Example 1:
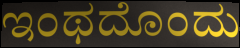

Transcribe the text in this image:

ಇಂಥದೊಂದು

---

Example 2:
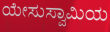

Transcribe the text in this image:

ಯೇಸುಸ್ವಾಮಿಯ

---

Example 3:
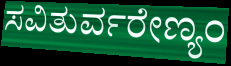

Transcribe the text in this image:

ಸವಿತುರ್ವರೇಣ್ಯಂ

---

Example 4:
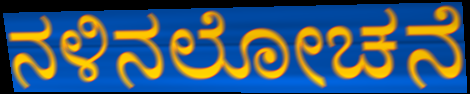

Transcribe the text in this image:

ನಳಿನಲೋಚನೆ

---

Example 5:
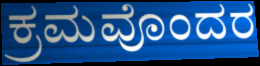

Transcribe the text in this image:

ಕ್ರಮವೊಂದರ